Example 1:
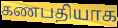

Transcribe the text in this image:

கணபதியாக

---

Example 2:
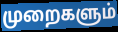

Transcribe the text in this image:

முறைகளும்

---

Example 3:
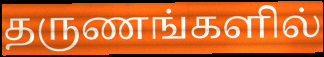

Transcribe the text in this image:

தருணங்களில்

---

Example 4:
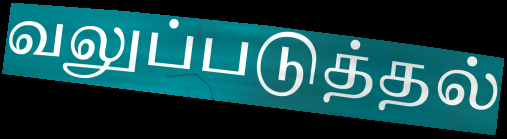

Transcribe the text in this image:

வலுப்படுத்தல்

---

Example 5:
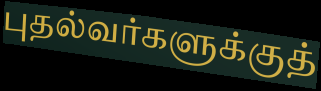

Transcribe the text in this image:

புதல்வர்களுக்குத்